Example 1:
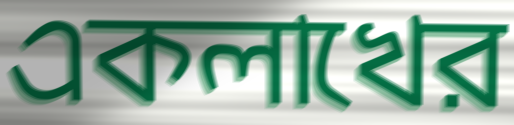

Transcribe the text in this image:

একলাখের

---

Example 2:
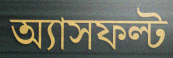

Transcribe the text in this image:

অ্যাসফল্ট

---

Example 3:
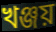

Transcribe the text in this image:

খঞ্জয়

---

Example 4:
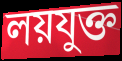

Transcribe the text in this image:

লয়যুক্ত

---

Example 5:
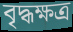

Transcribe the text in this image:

বৃদ্ধক্ষত্র